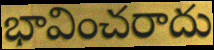
భావించరాదు